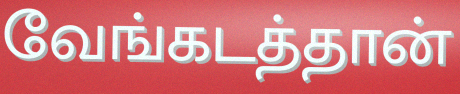
வேங்கடத்தான்